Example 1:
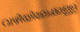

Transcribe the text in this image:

വഴിയിലേക്കുള്ള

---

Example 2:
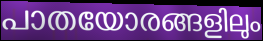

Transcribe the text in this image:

പാതയോരങ്ങളിലും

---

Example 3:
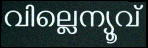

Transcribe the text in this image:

വില്ലെന്യൂവ്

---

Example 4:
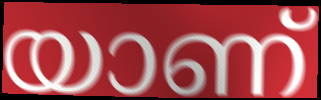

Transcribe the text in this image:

യാണ്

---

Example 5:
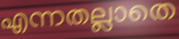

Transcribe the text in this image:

എന്നതല്ലാതെ